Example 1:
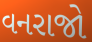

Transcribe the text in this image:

વનરાજો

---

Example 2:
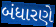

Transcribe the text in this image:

બંધારણે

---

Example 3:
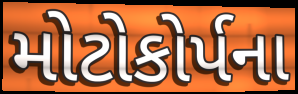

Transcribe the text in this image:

મોટોકોર્પના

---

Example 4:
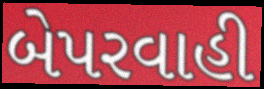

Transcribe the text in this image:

બેપરવાહી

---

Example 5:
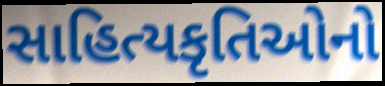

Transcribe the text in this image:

સાહિત્યકૃતિઓનો